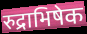
रुद्राभिषेक